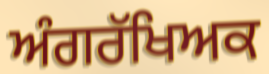
ਅੰਗਰੱਖਿਅਕ